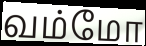
வம்மோ